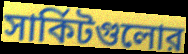
সার্কিটগুলোর